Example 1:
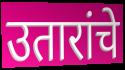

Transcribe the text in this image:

उतारांचे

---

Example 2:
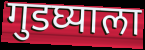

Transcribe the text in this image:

गुडघ्याला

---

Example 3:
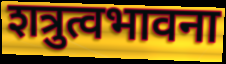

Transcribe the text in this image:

शत्रुत्वभावना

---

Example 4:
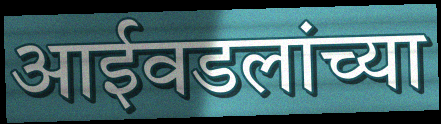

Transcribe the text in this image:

आईवडलांच्या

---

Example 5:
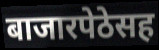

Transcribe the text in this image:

बाजारपेठेसह